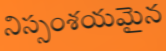
నిస్సంశయమైన